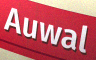
Auwal